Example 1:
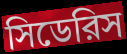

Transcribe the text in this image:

সিডেরিস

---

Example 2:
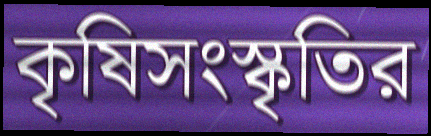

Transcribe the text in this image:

কৃষিসংস্কৃতির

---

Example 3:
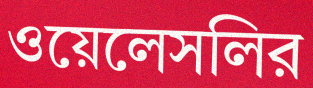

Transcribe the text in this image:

ওয়েলেসলির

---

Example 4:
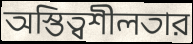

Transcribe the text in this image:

অস্তিত্বশীলতার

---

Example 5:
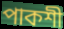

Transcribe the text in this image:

পাকশী